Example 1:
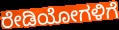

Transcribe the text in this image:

ರೇಡಿಯೋಗಳಿಗೆ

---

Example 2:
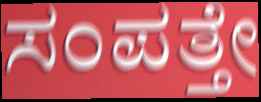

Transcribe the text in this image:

ಸಂಪತ್ತೇ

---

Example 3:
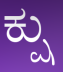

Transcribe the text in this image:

ಕ್ಷು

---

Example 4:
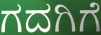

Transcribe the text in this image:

ಗದಗಿಗೆ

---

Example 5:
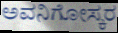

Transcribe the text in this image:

ಅವನಿಗೋಸ್ಕರ